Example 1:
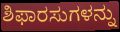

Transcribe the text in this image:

ಶಿಫಾರಸುಗಳನ್ನು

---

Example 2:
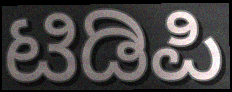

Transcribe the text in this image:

ಟಿಡಿಪಿ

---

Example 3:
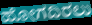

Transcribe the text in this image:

ಹೋಗದಿರಲು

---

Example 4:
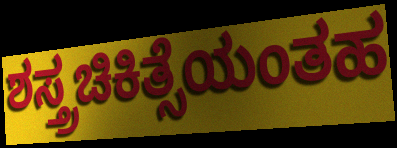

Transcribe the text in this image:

ಶಸ್ತ್ರಚಿಕಿತ್ಸೆಯಂತಹ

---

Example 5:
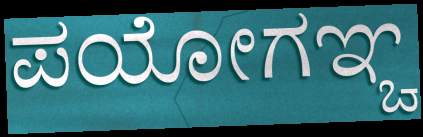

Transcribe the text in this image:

ಪಯೋಗಞ್ಚ